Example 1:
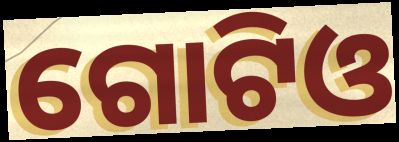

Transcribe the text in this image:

ଗୋଟିଓ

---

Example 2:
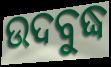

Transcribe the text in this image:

ଉଦବୁଦ୍ଧ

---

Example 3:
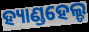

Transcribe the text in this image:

ହ୍ୟାଣ୍ଡହେଲ୍ଡ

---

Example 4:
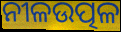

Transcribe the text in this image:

ନୀଳଉତ୍ପଳ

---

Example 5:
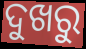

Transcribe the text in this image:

ଦୁଖରୁ